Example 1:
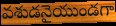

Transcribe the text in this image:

వశుడనైయుండగా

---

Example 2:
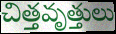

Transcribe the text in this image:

చిత్తవృత్తులు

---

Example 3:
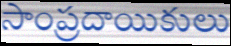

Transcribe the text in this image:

సాంప్రదాయికులు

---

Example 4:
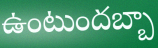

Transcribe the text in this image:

ఉంటుందబ్బా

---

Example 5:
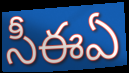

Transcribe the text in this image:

సీఈఏ